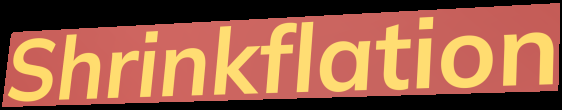
Shrinkflation